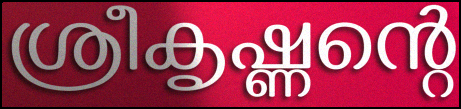
ശ്രീകൃഷ്ണന്റെ